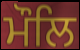
ਮੌਲਿ